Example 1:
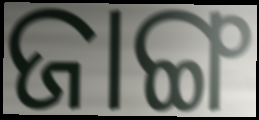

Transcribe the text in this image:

ଜାଙ୍ଗ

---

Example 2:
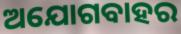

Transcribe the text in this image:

ଅଯୋଗବାହର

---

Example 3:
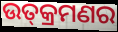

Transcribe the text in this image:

ଉତ୍‍କ୍ରମଣର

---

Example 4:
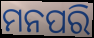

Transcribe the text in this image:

ମନପରି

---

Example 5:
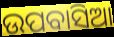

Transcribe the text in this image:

ଉପବାସିଆ